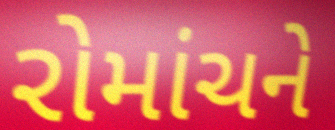
રોમાંચને